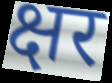
क्षर